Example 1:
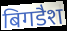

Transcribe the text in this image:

बिगडैश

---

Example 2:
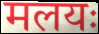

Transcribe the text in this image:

मलयः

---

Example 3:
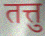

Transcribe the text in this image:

तत्तु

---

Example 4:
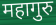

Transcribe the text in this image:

महागुरु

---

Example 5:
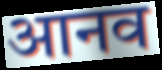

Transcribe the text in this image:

आनव